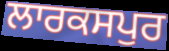
ਲਾਰਕਸਪੁਰ